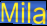
Mila